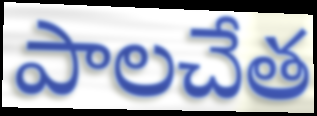
పాలచేత